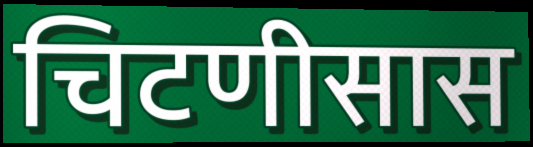
चिटणीसास